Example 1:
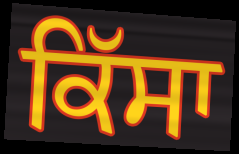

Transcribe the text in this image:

ਕਿੱਸਾ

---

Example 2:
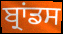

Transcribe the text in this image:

ਬ੍ਰਾਂਡਸ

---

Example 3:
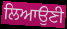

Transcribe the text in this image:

ਲਿਆਉਣੀ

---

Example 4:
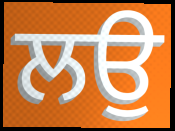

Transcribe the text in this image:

ਲਉ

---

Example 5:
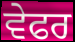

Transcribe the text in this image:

ਵੇਫਰ